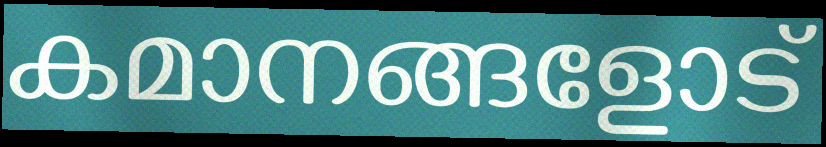
കമാനങ്ങളോട്